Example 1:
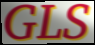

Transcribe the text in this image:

GLS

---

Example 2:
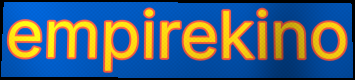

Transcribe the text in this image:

empirekino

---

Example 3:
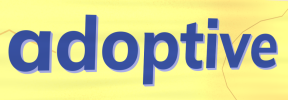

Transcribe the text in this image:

adoptive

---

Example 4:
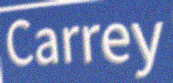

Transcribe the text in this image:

Carrey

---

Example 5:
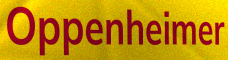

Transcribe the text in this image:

Oppenheimer